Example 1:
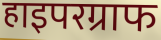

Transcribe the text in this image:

हाइपरग्राफ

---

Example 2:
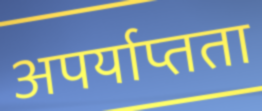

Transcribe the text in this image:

अपर्याप्‍तता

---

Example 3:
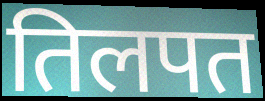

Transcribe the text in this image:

तिलपत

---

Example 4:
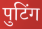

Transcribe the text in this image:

पुटिंग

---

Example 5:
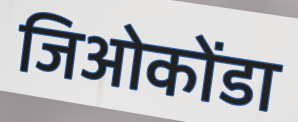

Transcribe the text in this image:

जिओकोंडा